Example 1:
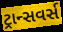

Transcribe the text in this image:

ટ્રાન્સવર્સ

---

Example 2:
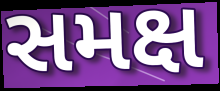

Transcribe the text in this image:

સમક્ષ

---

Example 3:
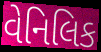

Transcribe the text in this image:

વેનિલિક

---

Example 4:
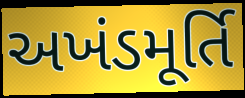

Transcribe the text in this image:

અખંડમૂર્તિ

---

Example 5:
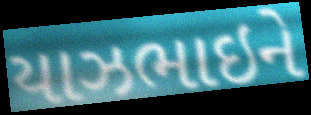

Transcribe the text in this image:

યાઝભાઇને